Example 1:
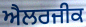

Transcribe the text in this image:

ਐਲਰਜੀਕ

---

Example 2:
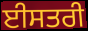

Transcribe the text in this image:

ਈਸਤਰੀ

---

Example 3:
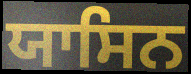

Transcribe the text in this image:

ਯਾਸਿਨ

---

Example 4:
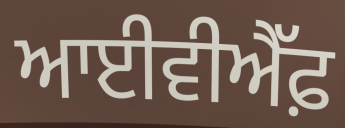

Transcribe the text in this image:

ਆਈਵੀਐੱਫ਼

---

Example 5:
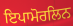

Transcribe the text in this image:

ਇਪਾਮੋਰਲਿਨ